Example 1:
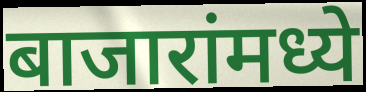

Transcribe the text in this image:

बाजारांमध्ये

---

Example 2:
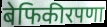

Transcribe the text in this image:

बेफिकीरपणा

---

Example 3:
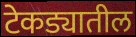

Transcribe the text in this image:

टेकड्यातील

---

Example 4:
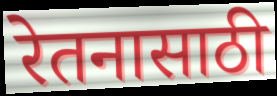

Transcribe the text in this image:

रेतनासाठी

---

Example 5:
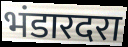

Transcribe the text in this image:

भंडारदरा